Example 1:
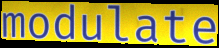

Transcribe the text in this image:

modulate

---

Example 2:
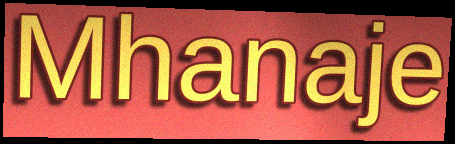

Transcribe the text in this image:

Mhanaje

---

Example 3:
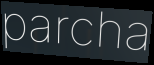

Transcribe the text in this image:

parcha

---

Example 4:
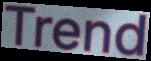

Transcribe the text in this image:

Trend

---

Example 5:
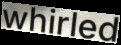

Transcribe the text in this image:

whirled